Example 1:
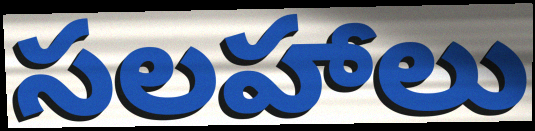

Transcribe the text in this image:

సలహాలు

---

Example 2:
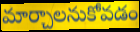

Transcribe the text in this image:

మార్చాలనుకోవడం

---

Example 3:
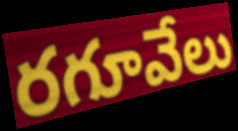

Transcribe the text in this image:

రగూవేలు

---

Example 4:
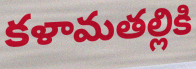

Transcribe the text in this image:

కళామతల్లికి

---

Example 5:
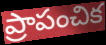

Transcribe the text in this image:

ప్రాపంచిక